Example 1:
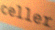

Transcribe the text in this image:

celler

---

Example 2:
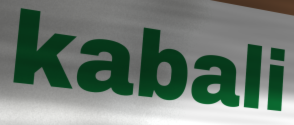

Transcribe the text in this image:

kabali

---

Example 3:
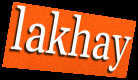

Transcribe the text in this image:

lakhay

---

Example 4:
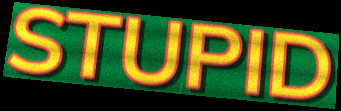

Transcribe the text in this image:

STUPID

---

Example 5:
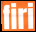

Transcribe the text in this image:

firi